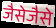
जैसेजैसे